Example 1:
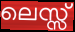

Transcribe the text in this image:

ലെസ്സ്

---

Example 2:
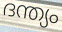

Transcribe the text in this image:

ദന്ത്യം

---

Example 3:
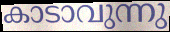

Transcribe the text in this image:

കാടാവുന്നു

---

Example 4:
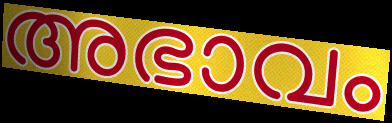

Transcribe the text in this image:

അഭാവം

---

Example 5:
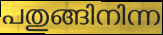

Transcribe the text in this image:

പതുങ്ങിനിന്ന